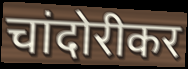
चांदोरीकर